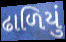
ઢાળિયું